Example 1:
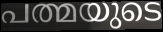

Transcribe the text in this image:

പത്മയുടെ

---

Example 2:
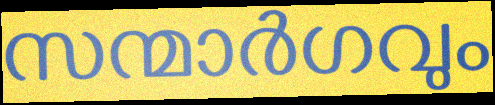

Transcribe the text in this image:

സന്മാർഗവും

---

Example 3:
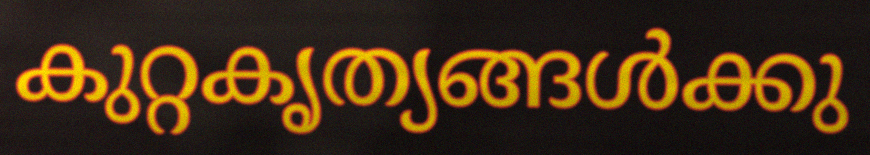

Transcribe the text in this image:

കുറ്റകൃത്യങ്ങൾക്കു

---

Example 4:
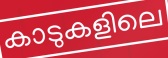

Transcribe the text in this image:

കാടുകളിലെ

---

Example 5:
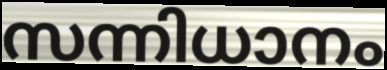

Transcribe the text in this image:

സന്നിധാനം